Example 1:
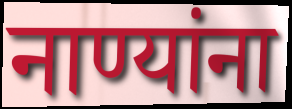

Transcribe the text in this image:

नाण्यांना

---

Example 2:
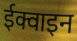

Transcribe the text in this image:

ईक्वाइन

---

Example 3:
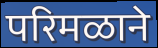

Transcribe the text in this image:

परिमळाने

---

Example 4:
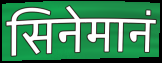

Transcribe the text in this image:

सिनेमानं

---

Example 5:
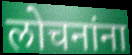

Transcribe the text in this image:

लोचनांना